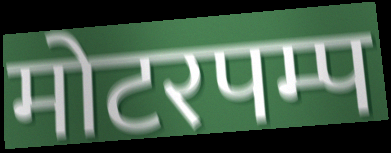
मोटरपम्प